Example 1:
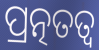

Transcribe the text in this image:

ପ୍ରତ୍ନତତ୍ୱ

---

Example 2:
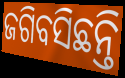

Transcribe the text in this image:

ଜଗିବସିଛନ୍ତି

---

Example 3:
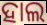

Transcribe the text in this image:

ହାଲ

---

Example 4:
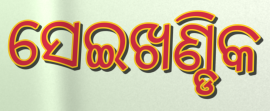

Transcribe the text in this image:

ସେଇଖଣ୍ଡିକ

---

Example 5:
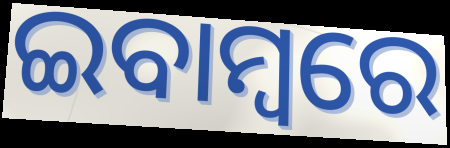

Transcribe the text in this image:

ଇବାମ୍ବରେ